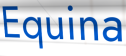
Equina